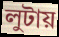
লুটায়